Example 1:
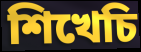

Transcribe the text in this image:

শিখেচি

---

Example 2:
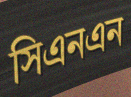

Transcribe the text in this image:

সিএনএন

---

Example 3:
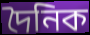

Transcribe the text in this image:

দৈনিক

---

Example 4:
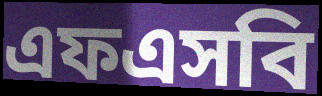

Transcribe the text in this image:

এফএসবি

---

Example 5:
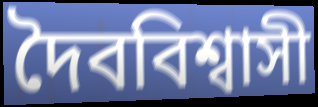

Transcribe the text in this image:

দৈববিশ্বাসী